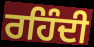
ਰਹਿੰਦੀ